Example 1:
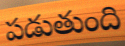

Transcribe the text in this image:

పడుతుంది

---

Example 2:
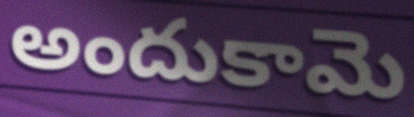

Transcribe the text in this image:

అందుకామె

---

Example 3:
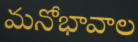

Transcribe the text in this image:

మనోభావాల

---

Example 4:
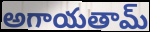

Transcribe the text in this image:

అగాయతామ్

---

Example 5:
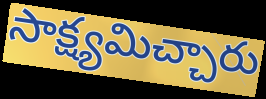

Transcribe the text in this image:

సాక్ష్యమిచ్చారు